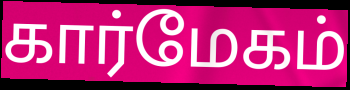
கார்மேகம்